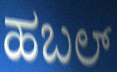
ಹಬಲ್